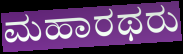
ಮಹಾರಥರು